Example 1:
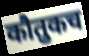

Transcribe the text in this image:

कौतुकच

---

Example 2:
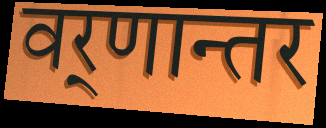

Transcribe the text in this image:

वर्णान्तर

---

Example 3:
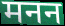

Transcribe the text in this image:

मनन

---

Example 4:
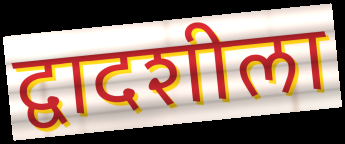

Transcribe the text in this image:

द्वादशीला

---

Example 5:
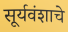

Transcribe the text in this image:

सूर्यवंशाचे